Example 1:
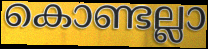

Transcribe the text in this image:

കൊണ്ടല്ലാ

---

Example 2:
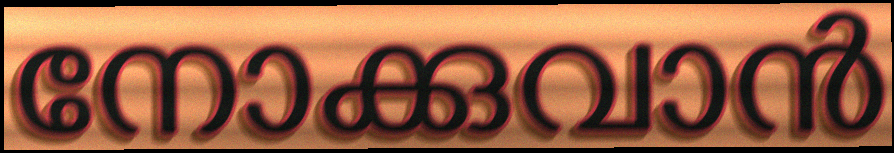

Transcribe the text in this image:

നോക്കുവാൻ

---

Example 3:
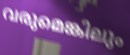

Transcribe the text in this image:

വരുമെങ്കിലും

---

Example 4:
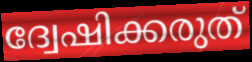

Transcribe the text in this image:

ദ്വേഷിക്കരുത്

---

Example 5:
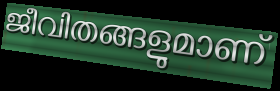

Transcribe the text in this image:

ജീവിതങ്ങളുമാണ്